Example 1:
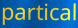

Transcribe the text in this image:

partical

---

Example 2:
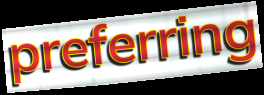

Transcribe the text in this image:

preferring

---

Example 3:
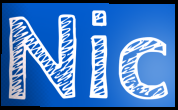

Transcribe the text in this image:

Nic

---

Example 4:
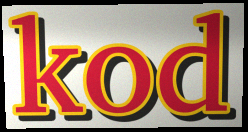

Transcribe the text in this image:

kod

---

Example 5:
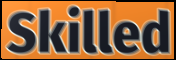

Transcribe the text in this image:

Skilled